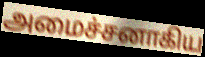
அமைச்சனாகிய